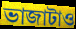
ভাজাটাও